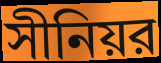
সীনিয়র